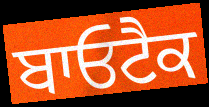
ਬਾਓਟੈਕ